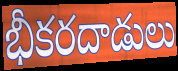
భీకరదాడులు